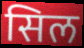
सिल